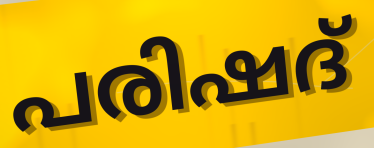
പരിഷദ്